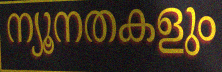
ന്യൂനതകളും